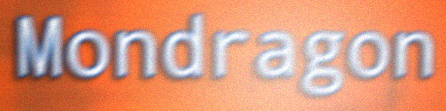
Mondragon